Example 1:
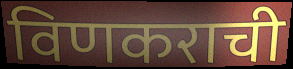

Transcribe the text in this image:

विणकराची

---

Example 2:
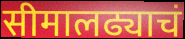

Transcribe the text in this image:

सीमालढ्याचं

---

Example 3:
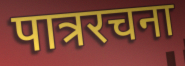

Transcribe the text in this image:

पात्ररचना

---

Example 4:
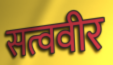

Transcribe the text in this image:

सत्ववीर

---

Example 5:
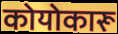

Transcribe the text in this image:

कोयोकारू